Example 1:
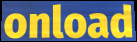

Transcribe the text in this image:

onload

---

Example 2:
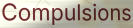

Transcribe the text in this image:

Compulsions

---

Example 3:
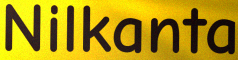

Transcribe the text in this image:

Nilkanta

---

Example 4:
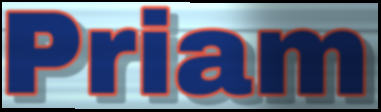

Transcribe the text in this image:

Priam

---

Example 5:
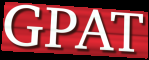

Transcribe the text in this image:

GPAT